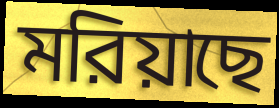
মরিয়াছে